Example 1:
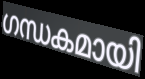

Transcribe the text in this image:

ഗന്ധകമായി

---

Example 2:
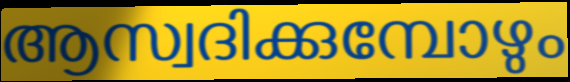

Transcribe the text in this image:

ആസ്വദിക്കുമ്പോഴും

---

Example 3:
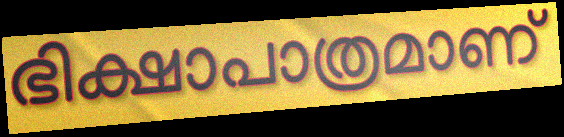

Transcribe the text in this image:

ഭിക്ഷാപാത്രമാണ്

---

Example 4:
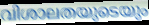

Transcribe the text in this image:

വിശാലതയുടെയും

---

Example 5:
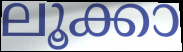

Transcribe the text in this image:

ലൂക്കാ